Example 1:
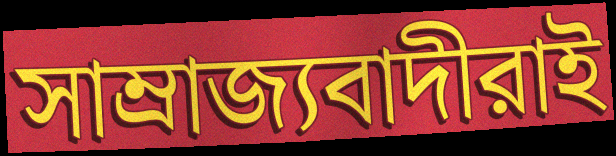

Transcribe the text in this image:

সাম্রাজ্যবাদীরাই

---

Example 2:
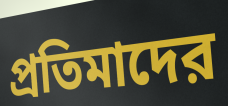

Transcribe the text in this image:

প্রতিমাদের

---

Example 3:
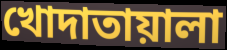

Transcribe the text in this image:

খোদাতায়ালা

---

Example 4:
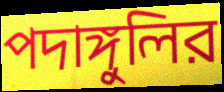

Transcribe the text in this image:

পদাঙ্গুলির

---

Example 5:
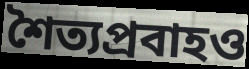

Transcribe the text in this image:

শৈত্যপ্রবাহও